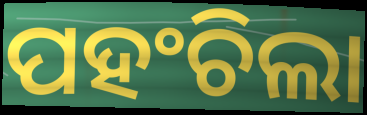
ପହଂଚିଲା